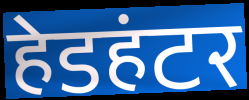
हेडहंटर